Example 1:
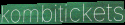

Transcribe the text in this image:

kombitickets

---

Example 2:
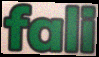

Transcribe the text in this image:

fali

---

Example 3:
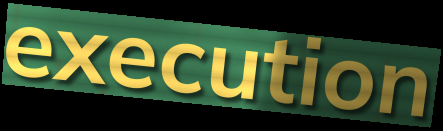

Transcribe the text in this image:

execution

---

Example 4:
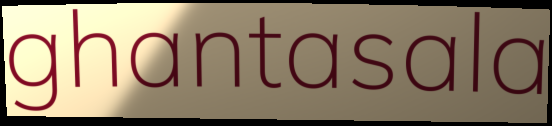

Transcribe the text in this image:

ghantasala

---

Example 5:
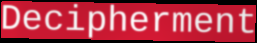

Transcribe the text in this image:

Decipherment